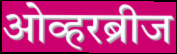
ओव्हरब्रीज